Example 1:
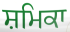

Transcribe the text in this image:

ਸ਼ਮਿਕਾ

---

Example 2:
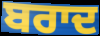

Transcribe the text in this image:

ਬਰਾਦ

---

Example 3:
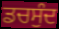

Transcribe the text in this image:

ਡਚਸੁੰਦ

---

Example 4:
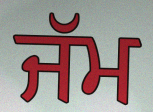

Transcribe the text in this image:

ਜੱਮ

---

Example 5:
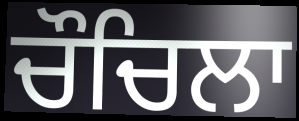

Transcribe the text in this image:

ਚੌਚਿਲਾ